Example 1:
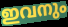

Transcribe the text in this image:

ഇവനും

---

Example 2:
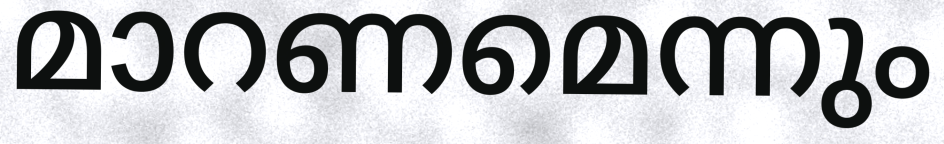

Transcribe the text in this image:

മാറണമെന്നും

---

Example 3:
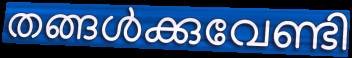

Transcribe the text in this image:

തങ്ങൾക്കുവേണ്ടി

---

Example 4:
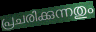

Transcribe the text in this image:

പ്രചരിക്കുന്നതും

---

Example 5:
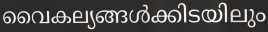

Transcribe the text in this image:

വൈകല്യങ്ങൾക്കിടയിലും